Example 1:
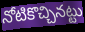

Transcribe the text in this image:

నోటికొచ్చినట్టు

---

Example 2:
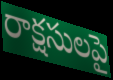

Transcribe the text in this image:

రాక్షసులపై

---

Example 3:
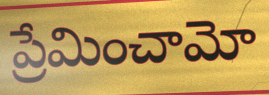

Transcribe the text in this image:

ప్రేమించామో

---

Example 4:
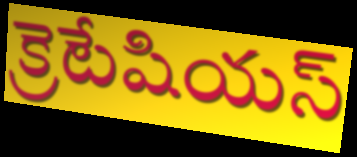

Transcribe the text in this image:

క్రెటేషియస్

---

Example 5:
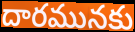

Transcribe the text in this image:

దారమునకు